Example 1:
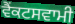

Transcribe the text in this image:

ਵੈਂਕਟਸਵਾਮੀ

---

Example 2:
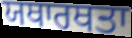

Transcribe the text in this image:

ਯਥਾਰਥਤਾ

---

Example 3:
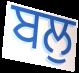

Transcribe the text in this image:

ਬਲੁ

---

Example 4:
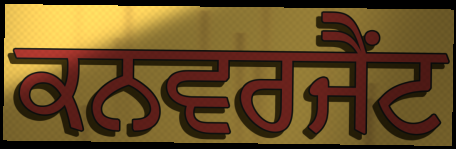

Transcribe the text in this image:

ਕਨਵਰਜੈਂਟ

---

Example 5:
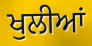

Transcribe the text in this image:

ਖੁਲੀਆਂ